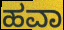
ಹವಾ